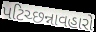
પટિચ્છન્નાવહારો